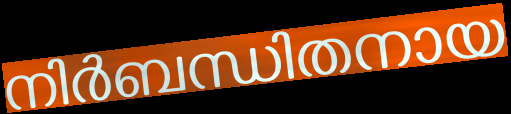
നിർബന്ധിതനായ